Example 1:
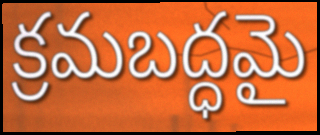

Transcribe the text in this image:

క్రమబద్ధమై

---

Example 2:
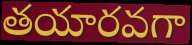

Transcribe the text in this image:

తయారవగా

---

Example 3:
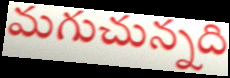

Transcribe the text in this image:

మగుచున్నది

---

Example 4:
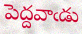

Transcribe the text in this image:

పెద్దవాఁడు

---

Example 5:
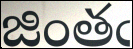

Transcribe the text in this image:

జింతఁ